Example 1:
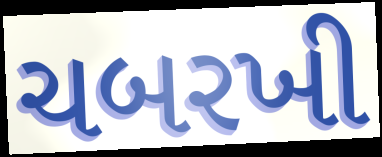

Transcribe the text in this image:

ચબરખી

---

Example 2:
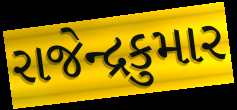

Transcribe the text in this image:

રાજેન્દ્રકુમાર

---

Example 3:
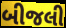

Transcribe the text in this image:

બીજલી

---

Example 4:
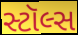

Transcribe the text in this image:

સ્ટૉલ્સ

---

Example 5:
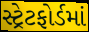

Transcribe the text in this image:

સ્ટ્રેટફોર્ડમાં